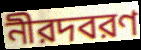
নীরদবরণ